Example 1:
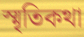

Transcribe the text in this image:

স্মৃতিকথা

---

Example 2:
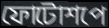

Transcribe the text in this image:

ফোটোশপে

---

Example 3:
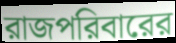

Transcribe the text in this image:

রাজপরিবারের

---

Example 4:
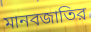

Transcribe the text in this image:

মানবজাতির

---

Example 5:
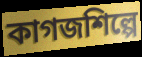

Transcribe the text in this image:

কাগজশিল্পে